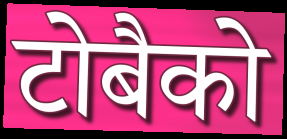
टोबैको